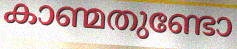
കാണ്മതുണ്ടോ